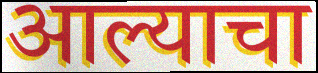
आल्‍याचा